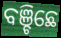
ବଞ୍ଚିଛେ